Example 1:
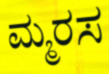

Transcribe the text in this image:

ಮ್ಮರಸ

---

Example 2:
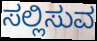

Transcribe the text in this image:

ಸಲ್ಲಿಸುವ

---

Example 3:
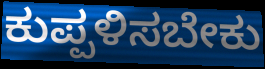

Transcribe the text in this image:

ಕುಪ್ಪಳಿಸಬೇಕು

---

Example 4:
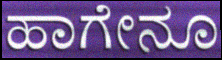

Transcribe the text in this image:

ಹಾಗೇನೂ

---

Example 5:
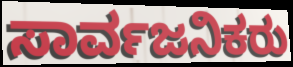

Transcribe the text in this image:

ಸಾರ್ವಜನಿಕರು